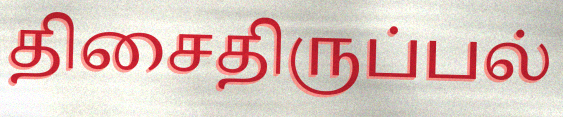
திசைதிருப்பல்